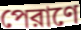
পেরাণে